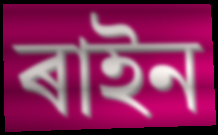
ৰাইন